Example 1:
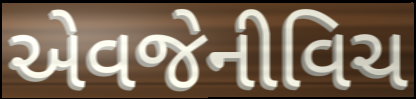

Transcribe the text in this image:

એવજેનીવિચ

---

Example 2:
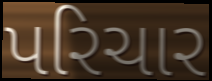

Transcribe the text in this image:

પરિચાર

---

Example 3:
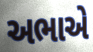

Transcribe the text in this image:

અભાએ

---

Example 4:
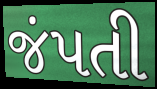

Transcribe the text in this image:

જંપતી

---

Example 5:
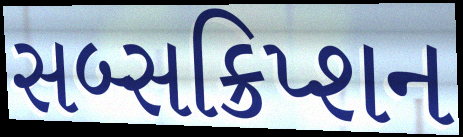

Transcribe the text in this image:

સબ્સક્રિપ્શન